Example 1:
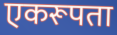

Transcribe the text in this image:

एकरूपता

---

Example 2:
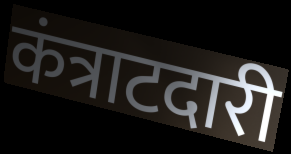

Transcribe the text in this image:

कंत्राटदारी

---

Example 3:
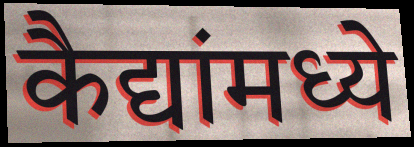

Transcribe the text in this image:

कैद्यांमध्ये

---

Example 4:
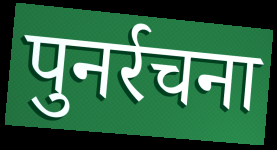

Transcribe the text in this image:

पुनर्रचना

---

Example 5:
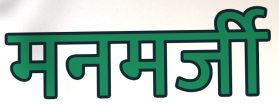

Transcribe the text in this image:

मनमर्जी